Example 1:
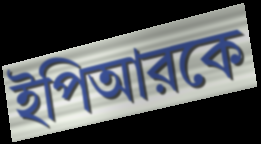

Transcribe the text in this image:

ইপিআরকে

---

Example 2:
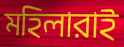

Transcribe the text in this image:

মহিলারাই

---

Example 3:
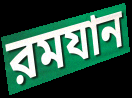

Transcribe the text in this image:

রমযান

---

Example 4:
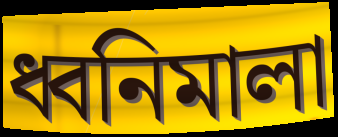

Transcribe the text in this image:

ধ্বনিমালা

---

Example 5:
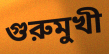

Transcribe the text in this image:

গুরুমুখী